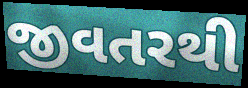
જીવતરથી